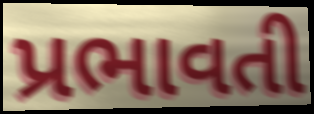
પ્રભાવતી